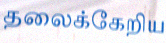
தலைக்கேறிய